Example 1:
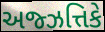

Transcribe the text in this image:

અજ્ઝત્તિકે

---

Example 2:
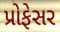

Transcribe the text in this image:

પ્રોફેસર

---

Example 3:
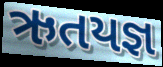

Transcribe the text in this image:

ઋતયજ્ઞ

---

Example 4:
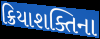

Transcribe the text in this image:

ક્રિયાશક્તિના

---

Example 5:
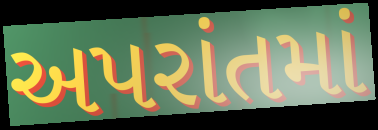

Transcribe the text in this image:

અપરાંતમાં